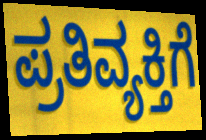
ಪ್ರತಿವ್ಯಕ್ತಿಗೆ